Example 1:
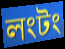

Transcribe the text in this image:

লংটং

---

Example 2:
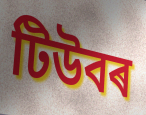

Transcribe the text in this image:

টিউবৰ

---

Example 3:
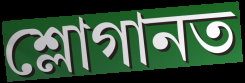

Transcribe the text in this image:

শ্লোগানত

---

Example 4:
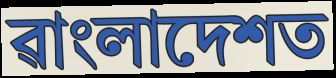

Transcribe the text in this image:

ৱাংলাদেশত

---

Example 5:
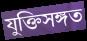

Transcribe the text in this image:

যুক্তিসঙ্গত